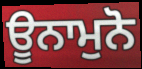
ਊਨਾਮੁਨੋ